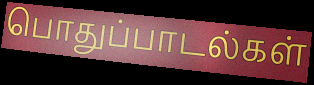
பொதுப்பாடல்கள்